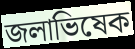
জলাভিষেক